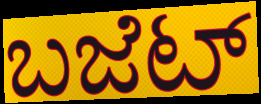
ಬಜೆಟ್